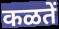
कळतें